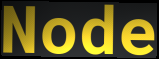
Node